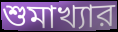
শুমাখ্যার